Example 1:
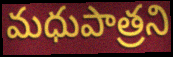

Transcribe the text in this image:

మధుపాత్రని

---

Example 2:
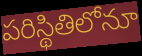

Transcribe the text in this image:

పరిస్థితిలోనూ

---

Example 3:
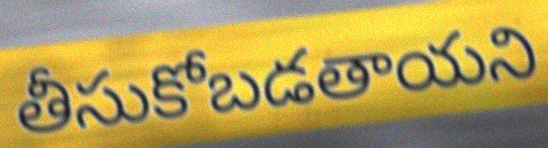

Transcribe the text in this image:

తీసుకోబడతాయని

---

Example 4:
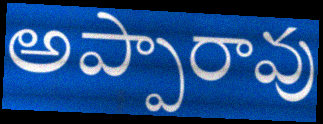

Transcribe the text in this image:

అప్పారావు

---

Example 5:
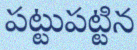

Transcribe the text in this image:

పట్టుపట్టిన